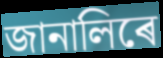
জানালিৰে